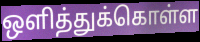
ஒளித்துக்கொள்ள